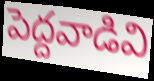
పెద్దవాడివి